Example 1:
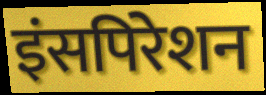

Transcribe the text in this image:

इंसपिरेशन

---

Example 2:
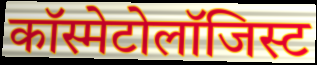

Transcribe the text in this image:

कॉस्मेटोलॉजिस्ट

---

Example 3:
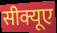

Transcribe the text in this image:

सीक्यूए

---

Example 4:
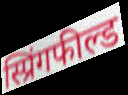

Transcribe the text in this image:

स्प्रिंगफील्ड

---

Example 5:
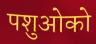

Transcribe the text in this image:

पशुओको